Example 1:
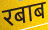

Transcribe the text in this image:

रबाब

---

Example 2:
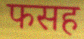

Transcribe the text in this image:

फसह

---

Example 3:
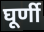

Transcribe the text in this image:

घूर्णी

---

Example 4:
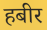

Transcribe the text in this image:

हबीर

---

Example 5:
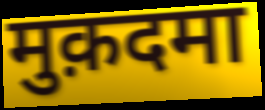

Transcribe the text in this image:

मुक़दमा